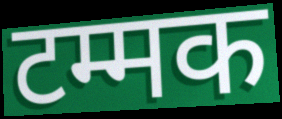
टम्मक